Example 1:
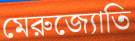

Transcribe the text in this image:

মেরুজ্যোতি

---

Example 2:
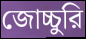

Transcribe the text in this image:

জোচ্চুরি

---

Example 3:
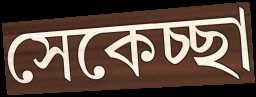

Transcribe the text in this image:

সেকেচ্ছা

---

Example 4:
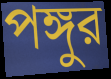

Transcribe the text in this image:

পঙ্গুর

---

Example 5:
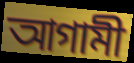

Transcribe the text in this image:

আগামী